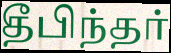
தீபிந்தர்